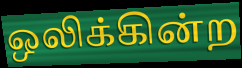
ஒலிக்கின்ற